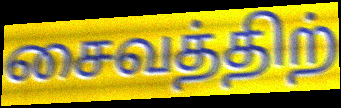
சைவத்திற்